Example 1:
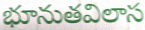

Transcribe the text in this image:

భూనుతవిలాస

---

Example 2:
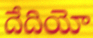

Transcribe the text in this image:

దేదియో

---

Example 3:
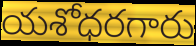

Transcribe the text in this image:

యశోధరగారు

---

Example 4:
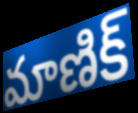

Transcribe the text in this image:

మాణిక్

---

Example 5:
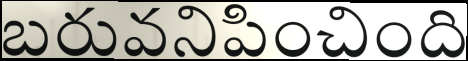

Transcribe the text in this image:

బరువనిపించింది